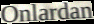
Onlardan